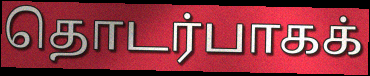
தொடர்பாகக்